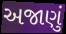
અજાણું